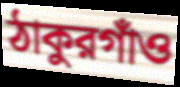
ঠাকুরগাঁও